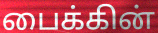
பைக்கின்